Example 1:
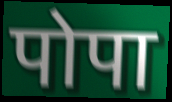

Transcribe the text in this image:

पोपा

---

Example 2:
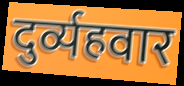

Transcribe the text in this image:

दुर्व्यहवार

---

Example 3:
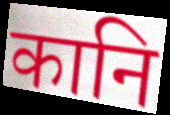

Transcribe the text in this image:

कानि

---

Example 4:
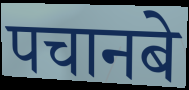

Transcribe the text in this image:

पचानबे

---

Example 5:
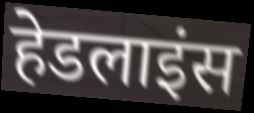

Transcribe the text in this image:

हेडलाइंस